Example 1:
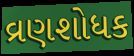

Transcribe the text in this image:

વ્રણશોધક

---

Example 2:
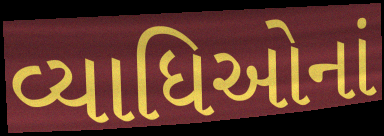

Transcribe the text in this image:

વ્યાધિઓનાં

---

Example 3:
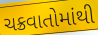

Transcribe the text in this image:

ચક્રવાતોમાંથી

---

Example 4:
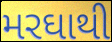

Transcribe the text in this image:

મરઘાથી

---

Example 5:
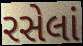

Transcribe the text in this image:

રસેલાં